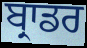
ਬ੍ਰਾਡਰ